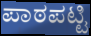
ಪಾಠಪಟ್ಟಿ